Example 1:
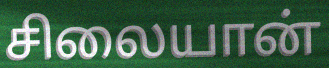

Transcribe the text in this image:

சிலையான்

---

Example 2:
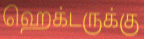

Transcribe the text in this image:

ஹெக்டருக்கு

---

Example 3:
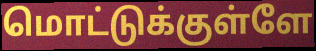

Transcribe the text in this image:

மொட்டுக்குள்ளே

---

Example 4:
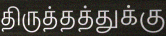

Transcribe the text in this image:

திருத்தத்துக்கு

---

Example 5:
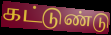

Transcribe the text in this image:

கட்டுண்டு